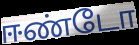
ஈண்டோ